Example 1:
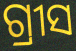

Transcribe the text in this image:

ଗ୍ରୀସ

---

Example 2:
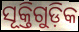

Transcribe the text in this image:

ସୂକ୍ତିଗୁଡ଼ିକ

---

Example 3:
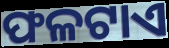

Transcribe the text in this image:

ଫଳଟାଏ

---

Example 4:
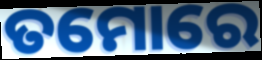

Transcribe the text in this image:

ତମୋରେ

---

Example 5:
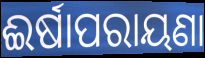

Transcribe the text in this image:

ଈର୍ଷାପରାୟଣା